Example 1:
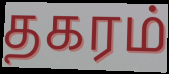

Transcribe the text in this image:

தகரம்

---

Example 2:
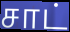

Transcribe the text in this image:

சாட்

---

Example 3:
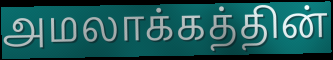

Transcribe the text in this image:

அமலாக்கத்தின்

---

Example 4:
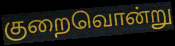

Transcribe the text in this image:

குறைவொன்று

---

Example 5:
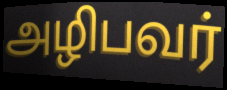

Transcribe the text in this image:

அழிபவர்